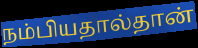
நம்பியதால்தான்